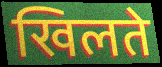
खिलते